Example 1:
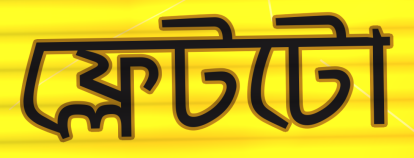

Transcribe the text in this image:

ফ্লেটটো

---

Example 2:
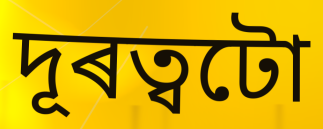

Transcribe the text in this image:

দূৰত্বটো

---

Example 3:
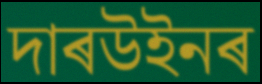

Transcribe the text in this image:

দাৰউইনৰ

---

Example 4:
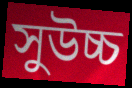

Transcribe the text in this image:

সুউচ্চ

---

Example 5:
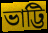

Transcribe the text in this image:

ভাট্টি